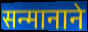
सन्मानाने